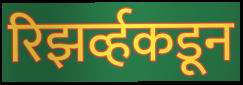
रिझर्व्हकडून